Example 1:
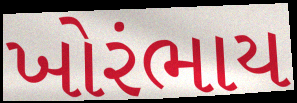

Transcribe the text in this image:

ખોરંભાય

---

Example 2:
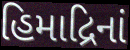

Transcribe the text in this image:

હિમાદ્રિનાં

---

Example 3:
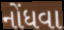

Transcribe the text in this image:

નોંધવા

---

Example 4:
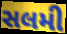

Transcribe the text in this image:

સલમી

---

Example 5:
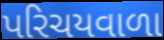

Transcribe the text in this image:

પરિચયવાળા